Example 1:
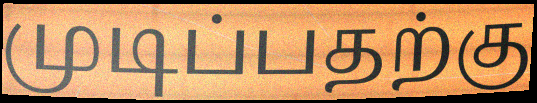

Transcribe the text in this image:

முடிப்பதற்கு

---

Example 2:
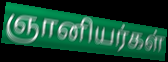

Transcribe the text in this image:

ஞானியர்கள்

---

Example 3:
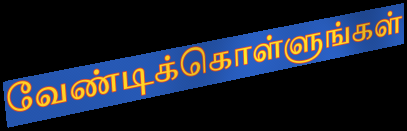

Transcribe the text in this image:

வேண்டிக்கொள்ளுங்கள்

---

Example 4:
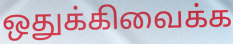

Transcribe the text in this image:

ஒதுக்கிவைக்க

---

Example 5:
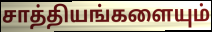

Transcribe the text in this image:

சாத்தியங்களையும்